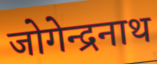
जोगेन्द्रनाथ